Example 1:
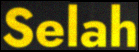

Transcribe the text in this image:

Selah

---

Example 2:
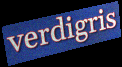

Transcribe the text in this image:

verdigris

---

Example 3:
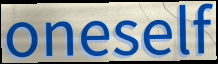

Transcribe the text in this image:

oneself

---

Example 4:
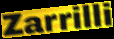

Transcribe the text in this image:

Zarrilli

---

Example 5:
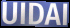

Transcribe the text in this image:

UIDAI